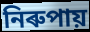
নিৰুপায়